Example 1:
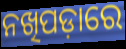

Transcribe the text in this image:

ନଖିପଡ଼ାରେ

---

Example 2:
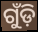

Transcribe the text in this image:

ଗୁଁଡ଼ି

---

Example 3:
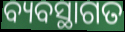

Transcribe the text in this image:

ବ୍ୟବସ୍ଥାଗତ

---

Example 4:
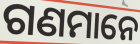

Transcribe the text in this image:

ଗଣମାନେ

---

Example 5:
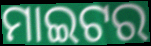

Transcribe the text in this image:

ମାଇଟର